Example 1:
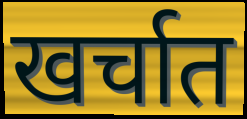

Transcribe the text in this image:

खर्चात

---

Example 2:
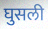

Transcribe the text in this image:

घुसली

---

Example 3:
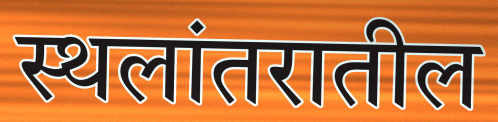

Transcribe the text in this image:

स्थलांतरातील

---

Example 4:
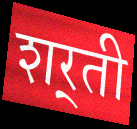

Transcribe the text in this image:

शर्ती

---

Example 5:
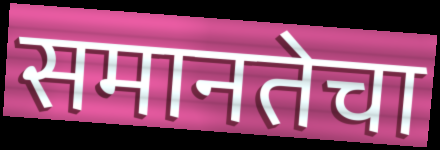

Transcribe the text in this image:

समानतेचा